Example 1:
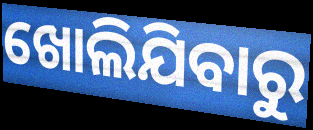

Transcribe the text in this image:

ଖୋଲିଯିବାରୁ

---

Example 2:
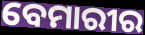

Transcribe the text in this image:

ବେମାରୀର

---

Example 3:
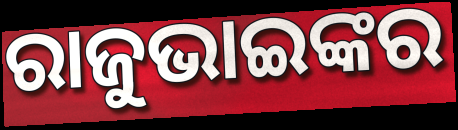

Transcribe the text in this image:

ରାଜୁଭାଇଙ୍କର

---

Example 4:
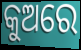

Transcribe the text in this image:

କୁଅରେ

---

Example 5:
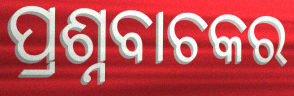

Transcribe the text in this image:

ପ୍ରଶ୍ନବାଚକର